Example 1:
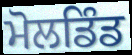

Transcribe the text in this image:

ਮੋਲਡਿੰਡ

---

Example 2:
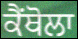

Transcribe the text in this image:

ਕੈਂਥੋਲਾ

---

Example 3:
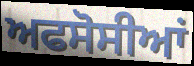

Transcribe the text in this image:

ਅਫਸੋਸੀਆਂ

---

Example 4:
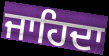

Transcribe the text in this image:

ਜਾਹਿਦਾ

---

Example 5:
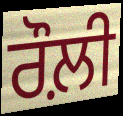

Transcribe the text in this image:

ਰੌਲ਼ੀ